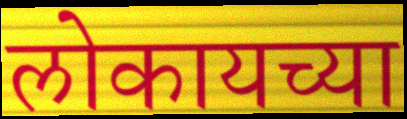
लोकायच्या